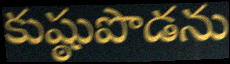
కుష్ఠుపొడను